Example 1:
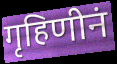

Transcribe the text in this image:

गृहिणीनं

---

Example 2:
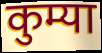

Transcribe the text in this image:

कुम्या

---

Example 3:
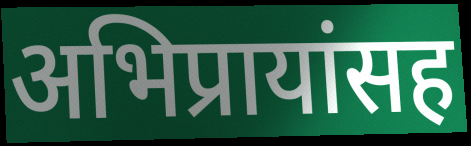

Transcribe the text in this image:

अभिप्रायांसह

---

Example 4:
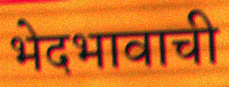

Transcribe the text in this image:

भेदभावाची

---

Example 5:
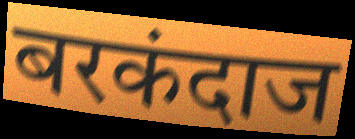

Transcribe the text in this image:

बरकंदाज